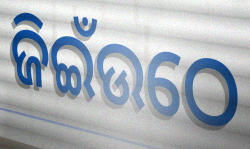
ଜିଇଁଉଠେ